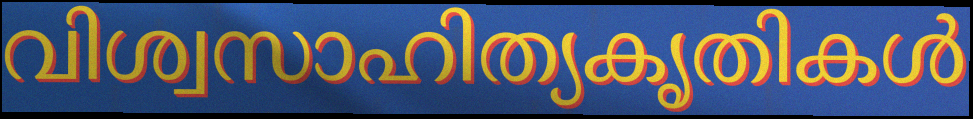
വിശ്വസാഹിത്യകൃതികൾ